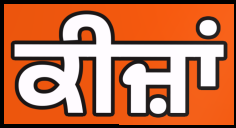
ਕੀਜ਼ਾਂ